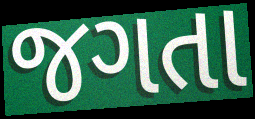
જગતા